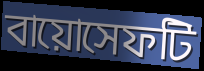
বায়োসেফটি